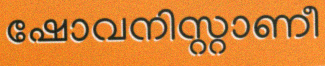
ഷോവനിസ്റ്റാണീ